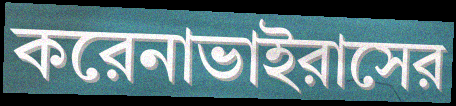
করেনাভাইরাসের